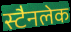
स्टैनलेक